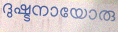
ദുഷ്ടനായോരു